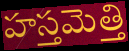
హస్తమెత్తి